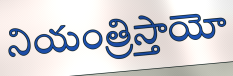
నియంత్రిస్తాయో